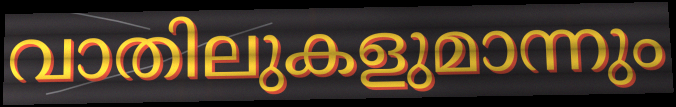
വാതിലുകളുമാന്നും